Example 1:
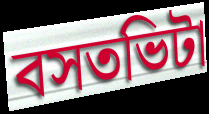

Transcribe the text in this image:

বসতভিটা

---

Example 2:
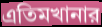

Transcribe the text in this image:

এতিমখানার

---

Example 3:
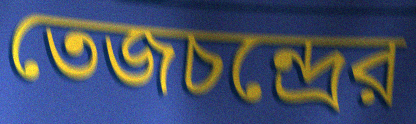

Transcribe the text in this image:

তেজচন্দ্রের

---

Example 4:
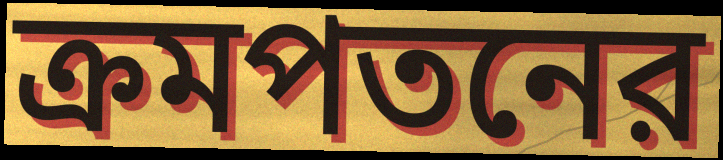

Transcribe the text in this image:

ক্রমপতনের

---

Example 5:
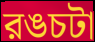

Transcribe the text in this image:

রঙচটা